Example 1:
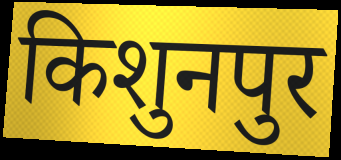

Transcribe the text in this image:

किशुनपुर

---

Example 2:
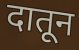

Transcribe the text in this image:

दातून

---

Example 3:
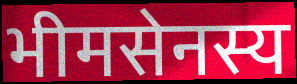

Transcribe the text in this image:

भीमसेनस्य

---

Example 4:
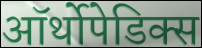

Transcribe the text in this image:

ऑर्थोपेडिक्स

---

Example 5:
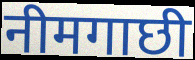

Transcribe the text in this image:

नीमगाछी